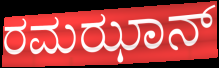
ರಮಝಾನ್